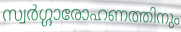
സ്വർഗ്ഗാരോഹണത്തിനും